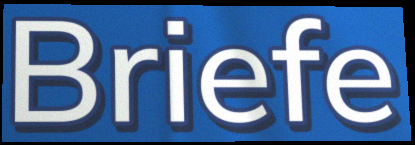
Briefe